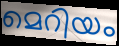
മെറിയം